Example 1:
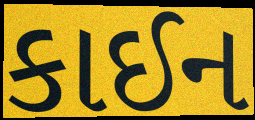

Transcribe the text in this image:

કાઈન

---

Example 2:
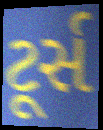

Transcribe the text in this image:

ટૂર્સ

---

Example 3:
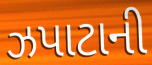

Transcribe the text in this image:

ઝપાટાની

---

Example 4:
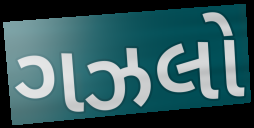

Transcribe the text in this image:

ગઝલો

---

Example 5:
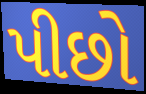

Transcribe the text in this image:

પીછો